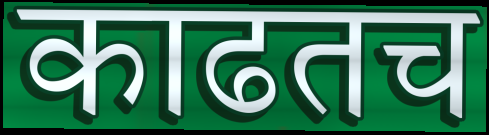
काढतच